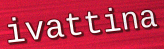
ivattina